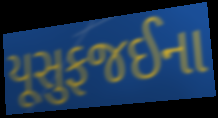
યૂસુફજઈના